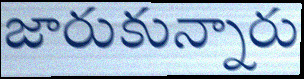
జారుకున్నారు